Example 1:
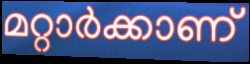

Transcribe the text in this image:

മറ്റാർക്കാണ്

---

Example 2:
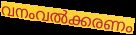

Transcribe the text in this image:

വനംവൽക്കരണം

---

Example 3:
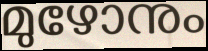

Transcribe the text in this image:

മുഴോനും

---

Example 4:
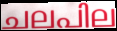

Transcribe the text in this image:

ചലപില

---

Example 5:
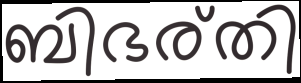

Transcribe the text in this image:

ബിഭര്തി